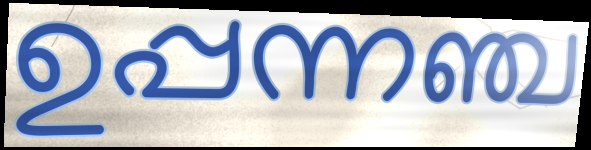
ഉപ്പന്നഞ്ച